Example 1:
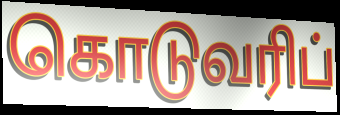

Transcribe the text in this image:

கொடுவரிப்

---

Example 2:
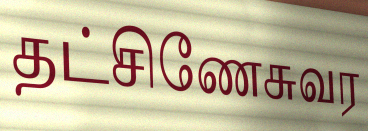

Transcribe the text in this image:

தட்சிணேசுவர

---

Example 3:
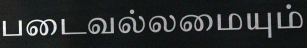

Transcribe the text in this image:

படைவல்லமையும்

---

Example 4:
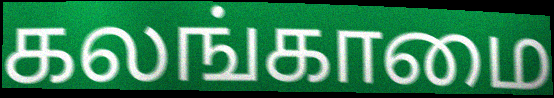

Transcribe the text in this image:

கலங்காமை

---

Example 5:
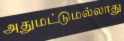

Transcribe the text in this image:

அதுமட்டுமல்லாது